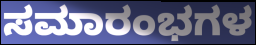
ಸಮಾರಂಭಗಳ